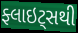
ફ્લાઇટ્સથી